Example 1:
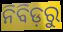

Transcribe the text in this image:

ନିବିଡ଼ରୁ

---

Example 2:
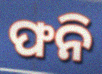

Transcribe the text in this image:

ଫନି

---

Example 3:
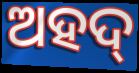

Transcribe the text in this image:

ଅହଦ୍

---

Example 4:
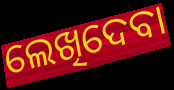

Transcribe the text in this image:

ଲେଖିଦେବା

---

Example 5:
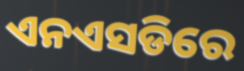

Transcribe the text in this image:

ଏନଏସଡିରେ